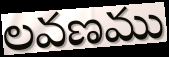
లవణము